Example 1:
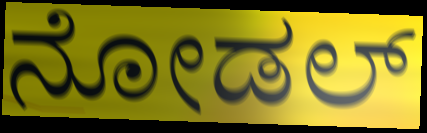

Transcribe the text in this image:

ನೋಡಲ್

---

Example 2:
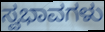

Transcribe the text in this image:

ಸ್ವಭಾವಗಳು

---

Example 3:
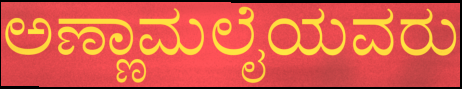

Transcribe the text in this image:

ಅಣ್ಣಾಮಲೈಯವರು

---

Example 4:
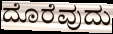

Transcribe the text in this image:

ದೊರೆವುದು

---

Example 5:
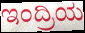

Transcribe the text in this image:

ಇಂದ್ರಿಯ